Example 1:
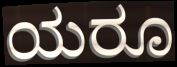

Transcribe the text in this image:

ಯರೂ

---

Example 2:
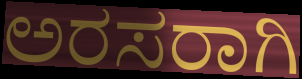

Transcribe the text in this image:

ಅರಸರಾಗಿ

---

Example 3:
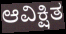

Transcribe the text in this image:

ಆವಿಕ್ಷಿತ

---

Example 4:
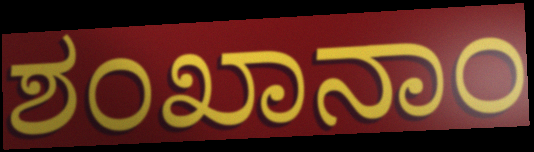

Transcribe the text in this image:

ಶಂಖಾನಾಂ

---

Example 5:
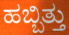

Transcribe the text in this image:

ಹಬ್ಬಿತ್ತು